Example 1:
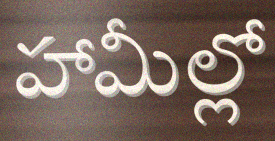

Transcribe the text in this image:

హామీల్లో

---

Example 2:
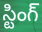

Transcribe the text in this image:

స్టింగ్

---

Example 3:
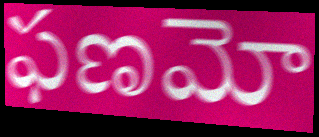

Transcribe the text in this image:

ఫణమో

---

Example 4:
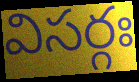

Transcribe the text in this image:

విసర్గః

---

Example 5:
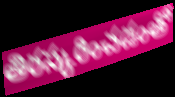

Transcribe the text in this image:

తిరస్కరించడంతో